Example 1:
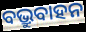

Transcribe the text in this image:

ବଭ୍ରୁବାହନ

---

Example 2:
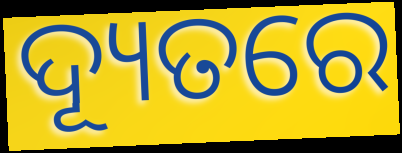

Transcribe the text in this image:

ଦ୍ୟୂତରେ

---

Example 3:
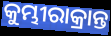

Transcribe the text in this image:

କୁମ୍ଭୀରାକ୍ରାନ୍ତ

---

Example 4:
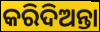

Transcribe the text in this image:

କରିଦିଅନ୍ତା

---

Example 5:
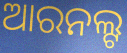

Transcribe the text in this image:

ଆରନଲ୍ଟ